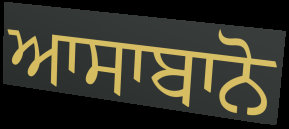
ਆਸਾਬਾਨੋ